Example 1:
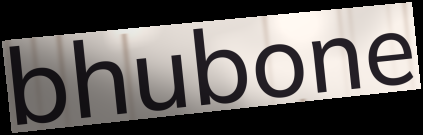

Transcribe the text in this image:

bhubone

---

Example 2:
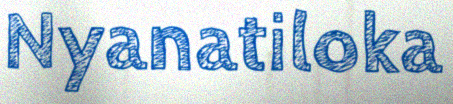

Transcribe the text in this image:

Nyanatiloka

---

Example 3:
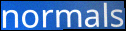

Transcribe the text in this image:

normals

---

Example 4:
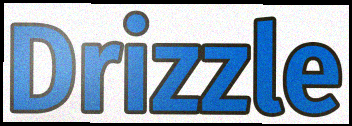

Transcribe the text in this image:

Drizzle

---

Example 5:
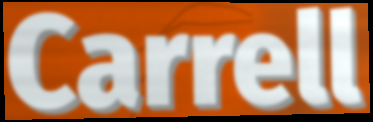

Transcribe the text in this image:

Carrell